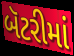
બૅટરીમાં